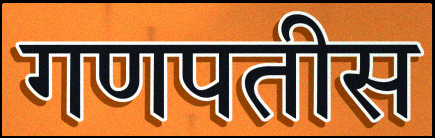
गणपतीस